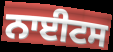
ਨਾਈਟਸ